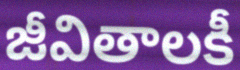
జీవితాలకీ